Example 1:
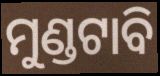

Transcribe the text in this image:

ମୁଣ୍ଡଟାବି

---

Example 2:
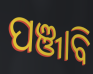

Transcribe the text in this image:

ପଞ୍ଜାବି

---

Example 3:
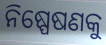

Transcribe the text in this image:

ନିଷ୍ପେଷଣକୁ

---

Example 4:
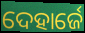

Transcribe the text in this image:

ଦେହାର୍ଜେ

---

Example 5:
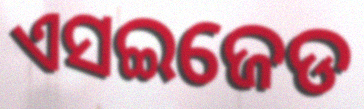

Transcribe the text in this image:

ଏସଇଜେଡ